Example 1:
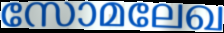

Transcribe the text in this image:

സോമലേഖ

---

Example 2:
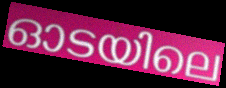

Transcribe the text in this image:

ഓടയിലെ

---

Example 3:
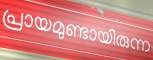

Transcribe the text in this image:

പ്രായമുണ്ടായിരുന്ന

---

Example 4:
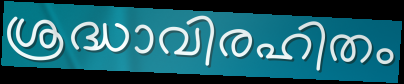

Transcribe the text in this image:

ശ്രദ്ധാവിരഹിതം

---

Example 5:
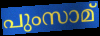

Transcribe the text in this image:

പുംസാമ്